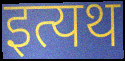
इत्यथ